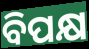
ବିପକ୍ଷ